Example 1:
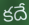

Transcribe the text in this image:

కదే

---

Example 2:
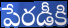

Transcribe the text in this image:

పేరడీకి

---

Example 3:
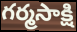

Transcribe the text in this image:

గర్మసాక్షి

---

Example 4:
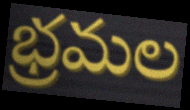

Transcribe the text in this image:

భ్రమల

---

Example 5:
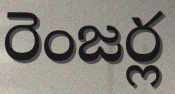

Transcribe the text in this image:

రెంజర్ల